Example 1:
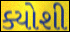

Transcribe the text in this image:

ક્યોશી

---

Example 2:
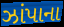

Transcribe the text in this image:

ઝાંપાના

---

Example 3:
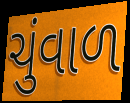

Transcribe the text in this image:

ચુંવાળ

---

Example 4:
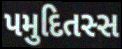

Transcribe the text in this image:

પમુદિતસ્સ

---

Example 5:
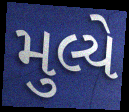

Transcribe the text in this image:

મુલ્યે